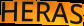
HERAS